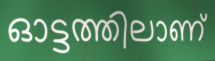
ഓട്ടത്തിലാണ്